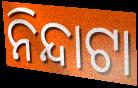
ନିନ୍ଦାଟା